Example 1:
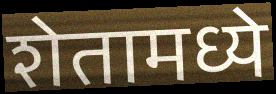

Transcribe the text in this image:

शेतामध्ये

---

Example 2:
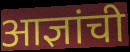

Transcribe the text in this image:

आज्ञांची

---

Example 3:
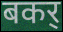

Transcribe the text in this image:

बकर्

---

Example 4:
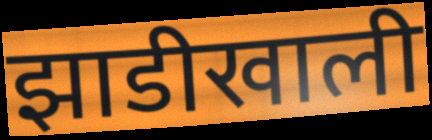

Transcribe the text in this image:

झाडीखाली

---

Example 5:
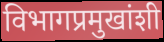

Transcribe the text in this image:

विभागप्रमुखांशी